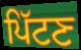
ਪਿੱਟਣ